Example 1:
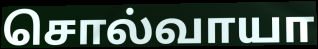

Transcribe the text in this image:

சொல்வாயா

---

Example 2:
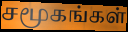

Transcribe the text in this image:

சமூகங்கள்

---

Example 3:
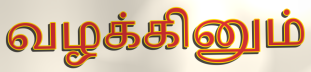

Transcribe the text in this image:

வழக்கினும்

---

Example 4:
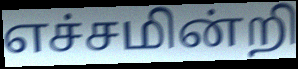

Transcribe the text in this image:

எச்சமின்றி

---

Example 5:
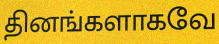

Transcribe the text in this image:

தினங்களாகவே